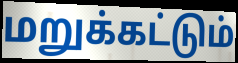
மறுக்கட்டும்